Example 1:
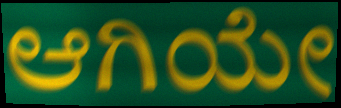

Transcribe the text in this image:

ಆಗಿಯೇ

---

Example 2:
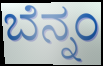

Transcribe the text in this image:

ಬೆನ್ನಂ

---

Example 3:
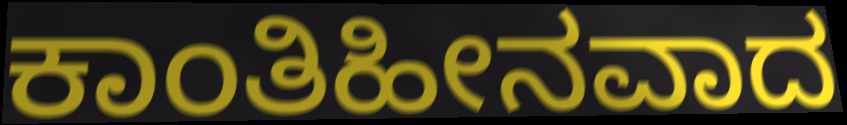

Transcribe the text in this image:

ಕಾಂತಿಹೀನವಾದ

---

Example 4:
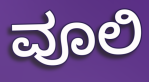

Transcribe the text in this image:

ವೂಲಿ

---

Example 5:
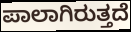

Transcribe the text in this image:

ಪಾಲಾಗಿರುತ್ತದೆ